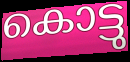
കൊട്ടു